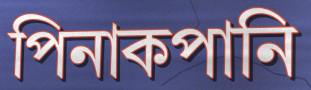
পিনাকপানি